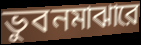
ভুবনমাঝারে